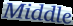
Middle